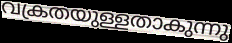
വക്രതയുള്ളതാകുന്നു